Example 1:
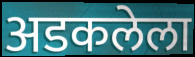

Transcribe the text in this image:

अडकलेला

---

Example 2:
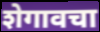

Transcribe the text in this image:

शेगावचा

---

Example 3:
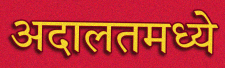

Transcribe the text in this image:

अदालतमध्ये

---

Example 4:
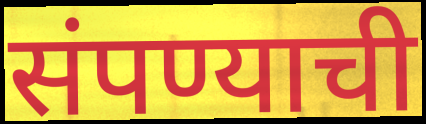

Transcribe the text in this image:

संपण्याची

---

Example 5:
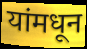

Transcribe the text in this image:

यांमधून